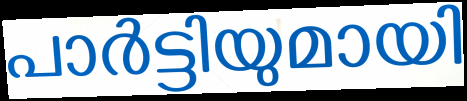
പാർട്ടിയുമായി